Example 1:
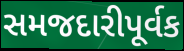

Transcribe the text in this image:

સમજદારીપૂર્વક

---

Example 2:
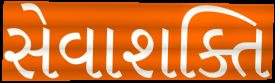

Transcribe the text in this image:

સેવાશક્તિ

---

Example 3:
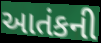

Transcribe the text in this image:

આતંકની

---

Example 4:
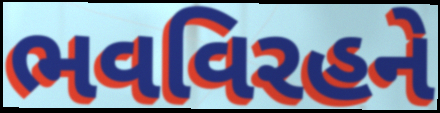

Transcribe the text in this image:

ભવવિરહને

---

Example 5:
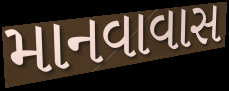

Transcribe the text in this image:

માનવાવાસ